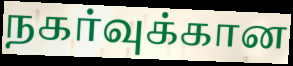
நகர்வுக்கான